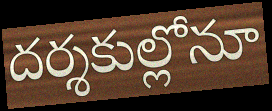
దర్శకుల్లోనూ